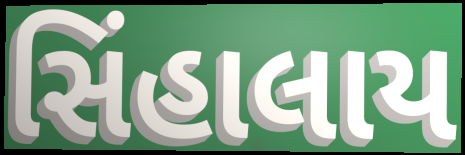
સિંહાલાય